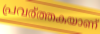
പ്രവര്ത്തകയാണ്